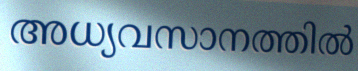
അധ്യവസാനത്തിൽ